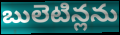
బులెటిన్లను